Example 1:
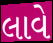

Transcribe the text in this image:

લાવે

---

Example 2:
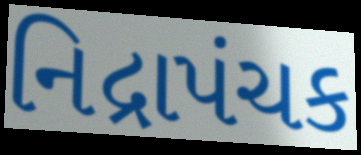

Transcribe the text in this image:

નિદ્રાપંચક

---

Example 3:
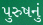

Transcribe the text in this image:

પુરુષનું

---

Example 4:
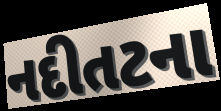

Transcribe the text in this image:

નદીતટના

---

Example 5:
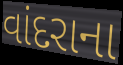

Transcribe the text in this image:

વાંદરાના